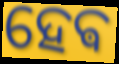
ହେଵ